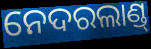
ନେଦରଲାଣ୍ଡ୍